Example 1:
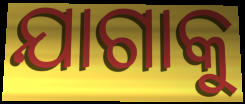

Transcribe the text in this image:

ଯାଗାକୁ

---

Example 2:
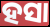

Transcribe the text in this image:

ହସା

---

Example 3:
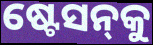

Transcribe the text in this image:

ଷ୍ଟେସନ୍‍କୁ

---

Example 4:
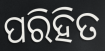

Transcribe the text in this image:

ପରିହିତ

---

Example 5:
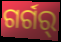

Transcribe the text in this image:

ଗର୍ଗର୍